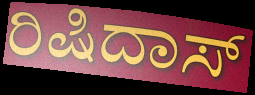
ರಿಷಿದಾಸ್